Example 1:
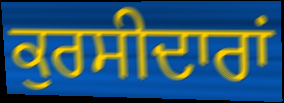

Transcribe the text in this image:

ਕੁਰਸੀਦਾਰਾਂ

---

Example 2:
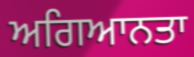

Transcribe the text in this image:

ਅਗਿਆਨਤਾ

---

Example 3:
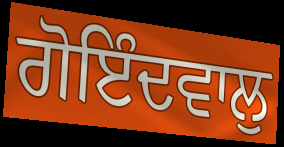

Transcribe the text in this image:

ਗੋਇੰਦਵਾਲੁ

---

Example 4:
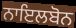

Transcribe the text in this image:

ਨਾਇਲਬੋਨ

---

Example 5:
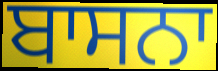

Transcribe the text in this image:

ਬਾਸਨਾ